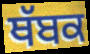
ਥੱਬਕ